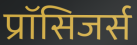
प्रॉसिजर्स